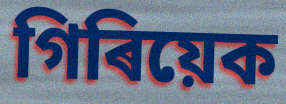
গিৰিয়েক